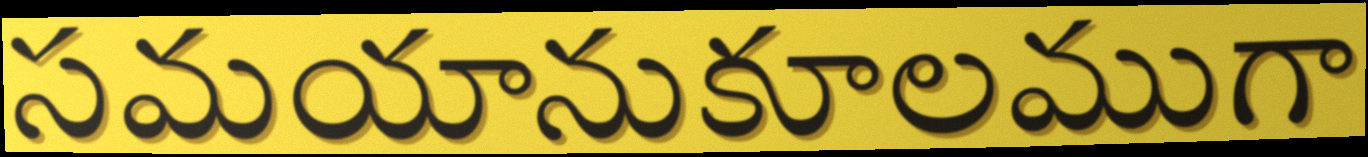
సమయానుకూలముగా